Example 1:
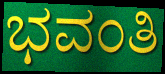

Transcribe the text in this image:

ಭವಂತಿ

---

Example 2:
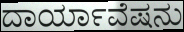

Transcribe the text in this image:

ದಾರ್ಯಾವೆಷನು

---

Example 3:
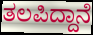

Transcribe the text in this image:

ತಲಪಿದ್ದಾನೆ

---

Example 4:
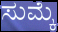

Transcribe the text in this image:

ಸುಮ್ಕೆ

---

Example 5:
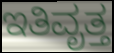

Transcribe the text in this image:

ಇತಿವೃತ್ತ